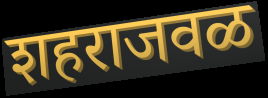
शहराजवळ